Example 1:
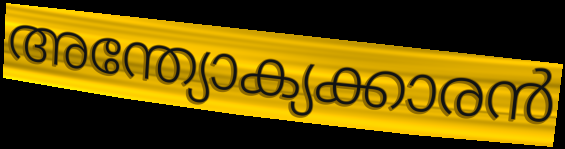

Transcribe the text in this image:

അന്ത്യോക്യക്കാരൻ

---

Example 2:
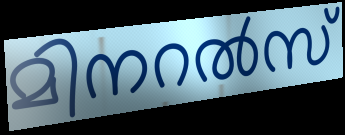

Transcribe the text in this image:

മിനറൽസ്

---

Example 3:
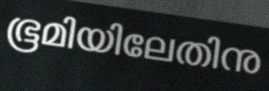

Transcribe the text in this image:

ഭൂമിയിലേതിനു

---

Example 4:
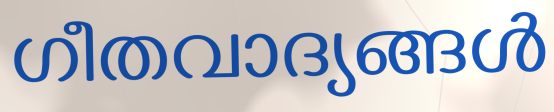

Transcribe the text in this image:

ഗീതവാദ്യങ്ങൾ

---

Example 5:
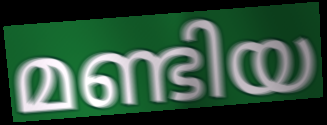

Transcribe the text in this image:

മണ്ടിയ